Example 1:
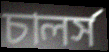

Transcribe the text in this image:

চালর্স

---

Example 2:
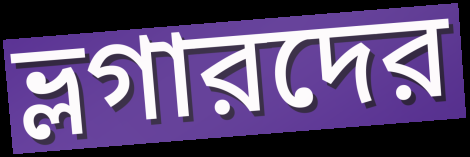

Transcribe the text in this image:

ভ্লগারদের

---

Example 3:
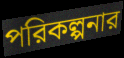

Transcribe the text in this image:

পরিকল্পনার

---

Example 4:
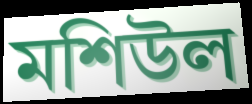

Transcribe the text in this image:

মশিউল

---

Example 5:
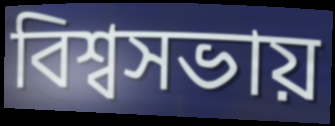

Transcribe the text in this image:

বিশ্বসভায়